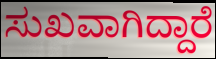
ಸುಖವಾಗಿದ್ದಾರೆ